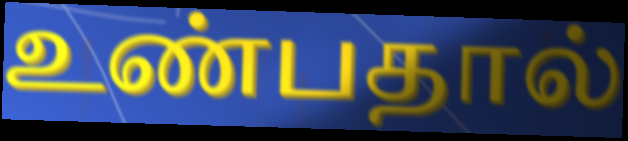
உண்பதால்